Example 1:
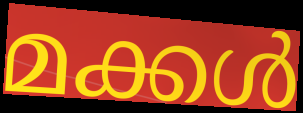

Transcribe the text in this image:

മക്കൾ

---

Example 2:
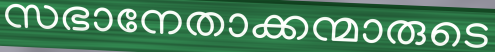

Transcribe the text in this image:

സഭാനേതാക്കന്മാരുടെ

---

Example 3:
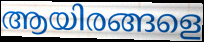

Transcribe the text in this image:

ആയിരങ്ങളെ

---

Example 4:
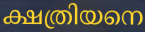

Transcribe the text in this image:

ക്ഷത്രിയനെ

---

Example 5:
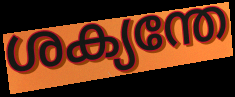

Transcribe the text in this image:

ശക്യന്തേ